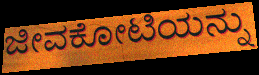
ಜೀವಕೋಟಿಯನ್ನು